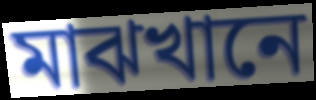
মাঝখানে